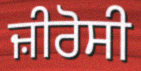
ਜ਼ੀਰੋਸੀ